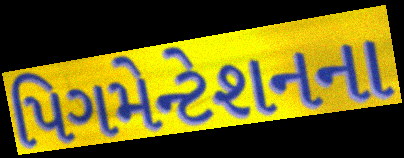
પિગમેન્ટેશનના